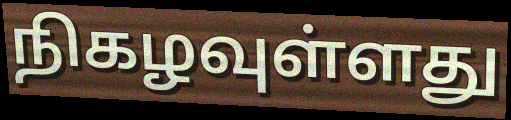
நிகழவுள்ளது